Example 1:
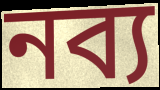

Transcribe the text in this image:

নব্য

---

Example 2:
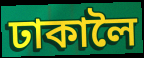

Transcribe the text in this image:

ঢাকালৈ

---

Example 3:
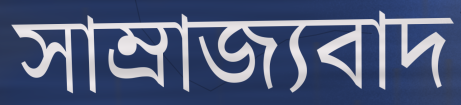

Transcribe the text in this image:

সাম্ৰাজ্যবাদ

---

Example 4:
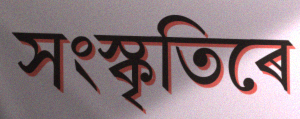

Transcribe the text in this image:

সংস্কৃতিৰে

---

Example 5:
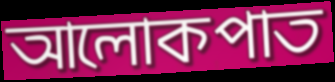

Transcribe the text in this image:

আলোকপাত